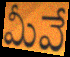
మీవే